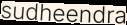
sudheendra